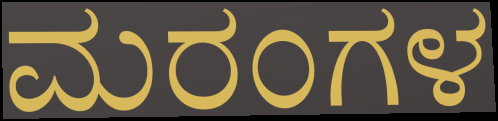
ಮರಂಗಳ